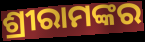
ଶ୍ରୀରାମଙ୍କର